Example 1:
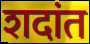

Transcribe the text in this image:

शदांत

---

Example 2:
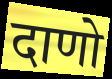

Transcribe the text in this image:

दाणो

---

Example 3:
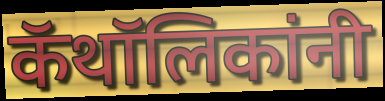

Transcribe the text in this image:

कॅथॉलिकांनी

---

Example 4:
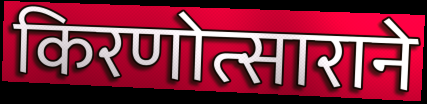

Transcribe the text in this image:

किरणोत्साराने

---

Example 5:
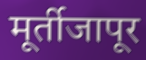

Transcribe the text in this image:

मूर्तीजापूर